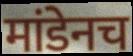
मांडेनच